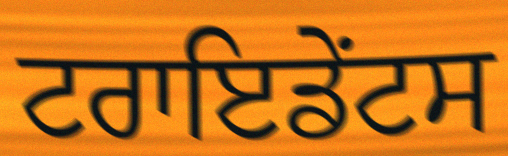
ਟਰਾਇਡੇਂਟਸ